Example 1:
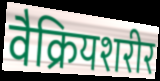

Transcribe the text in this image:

वैक्रियशरीर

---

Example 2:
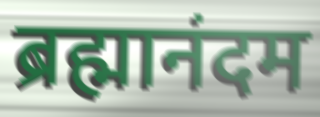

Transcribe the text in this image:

ब्रह्मानंदम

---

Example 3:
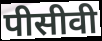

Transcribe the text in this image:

पीसीवी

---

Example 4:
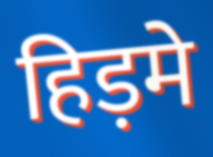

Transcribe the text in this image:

हिड़मे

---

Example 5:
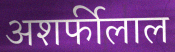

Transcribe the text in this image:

अशर्फीलाल